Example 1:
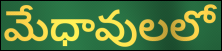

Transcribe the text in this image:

మేధావులలో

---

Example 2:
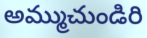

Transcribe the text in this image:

అమ్ముచుండిరి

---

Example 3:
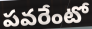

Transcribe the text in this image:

పవరేంటో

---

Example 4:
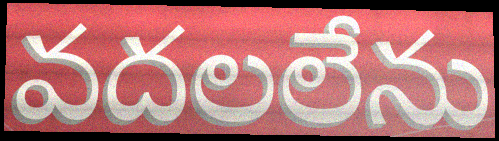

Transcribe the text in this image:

వదలలేను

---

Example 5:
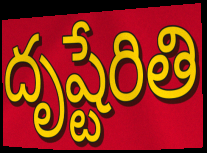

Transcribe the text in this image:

దృష్టేరితి